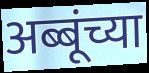
अब्बूंच्या